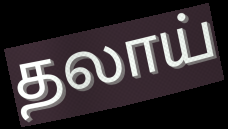
தலாய்